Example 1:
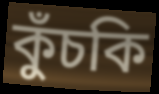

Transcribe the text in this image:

কুঁচকি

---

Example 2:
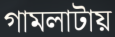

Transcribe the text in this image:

গামলাটায়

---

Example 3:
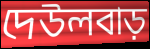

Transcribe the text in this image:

দেউলবাড়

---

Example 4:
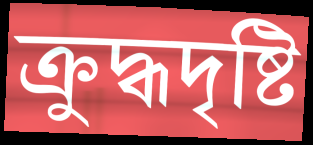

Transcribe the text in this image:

ক্রুদ্ধদৃষ্টি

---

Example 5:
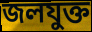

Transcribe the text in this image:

জলযুক্ত